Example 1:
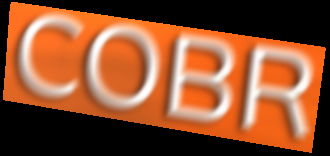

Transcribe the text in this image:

COBR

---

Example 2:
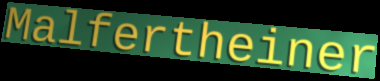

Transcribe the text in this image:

Malfertheiner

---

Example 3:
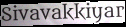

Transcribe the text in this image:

Sivavakkiyar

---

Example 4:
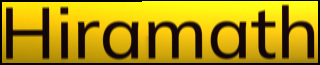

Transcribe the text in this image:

Hiramath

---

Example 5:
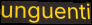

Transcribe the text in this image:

unguenti